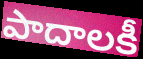
పాదాలకీ